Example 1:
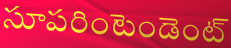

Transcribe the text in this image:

సూపరింటెండెంట్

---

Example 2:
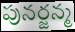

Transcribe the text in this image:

పునర్జన్మ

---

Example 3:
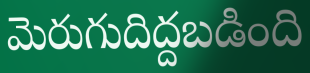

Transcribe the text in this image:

మెరుగుదిద్దబడింది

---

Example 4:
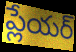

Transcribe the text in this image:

ప్లేయర్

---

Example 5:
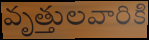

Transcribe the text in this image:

వృత్తులవారికి